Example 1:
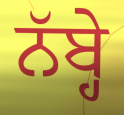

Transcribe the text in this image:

ਨੱਬ੍ਹੇ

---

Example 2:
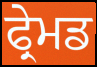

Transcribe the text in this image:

ਫ੍ਰੇਮਡ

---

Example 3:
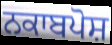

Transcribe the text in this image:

ਨਕਾਬਪੋਸ਼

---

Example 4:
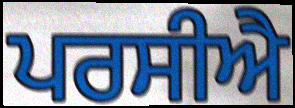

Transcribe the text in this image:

ਪਰਸੀਐ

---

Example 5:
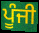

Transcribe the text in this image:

ਪੂੰਜੀ